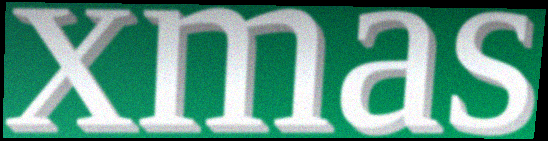
xmas